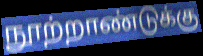
நூற்றாண்டுக்கு